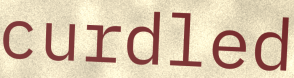
curdled